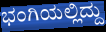
ಭಂಗಿಯಲ್ಲಿದ್ದು